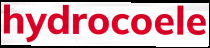
hydrocoele